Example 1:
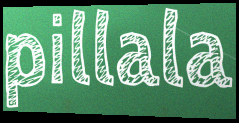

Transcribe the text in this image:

pillala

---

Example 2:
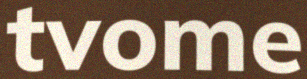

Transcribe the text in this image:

tvome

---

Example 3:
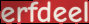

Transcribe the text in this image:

erfdeel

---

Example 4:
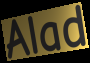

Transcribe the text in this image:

Alad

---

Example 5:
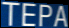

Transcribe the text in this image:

TEPA